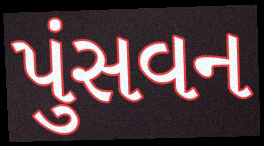
પુંસવન